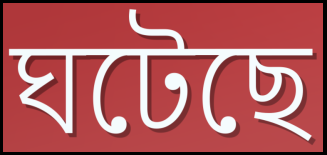
ঘটেছে